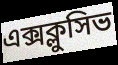
এক্সক্লুসিভ